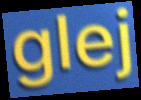
glej